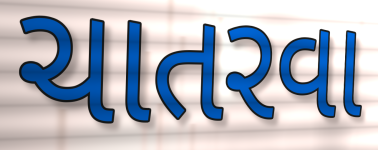
ચાતરવા